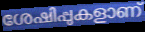
ശേഷിപ്പുകളാണ്